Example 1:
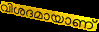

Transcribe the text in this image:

വിശദമായാണ്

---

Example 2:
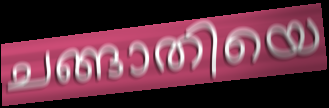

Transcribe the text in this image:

ചങ്ങാതിയെ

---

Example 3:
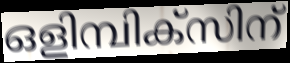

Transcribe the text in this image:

ഒളിമ്പിക്സിന്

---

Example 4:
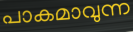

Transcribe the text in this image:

പാകമാവുന്ന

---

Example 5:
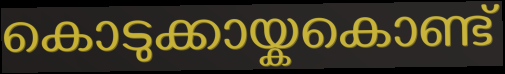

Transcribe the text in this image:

കൊടുക്കായ്കകൊണ്ട്